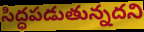
సిద్ధపడుతున్నదని